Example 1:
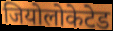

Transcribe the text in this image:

जियोलोकेटेड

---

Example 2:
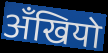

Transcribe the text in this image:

अँखियो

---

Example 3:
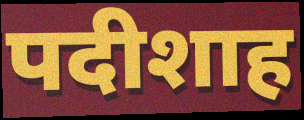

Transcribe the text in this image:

पदीशाह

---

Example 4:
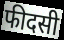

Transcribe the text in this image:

फीदसी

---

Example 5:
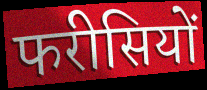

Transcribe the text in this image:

फरीसियों